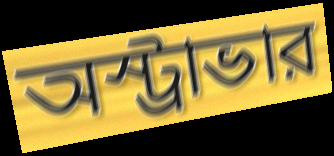
অস্ট্রাভার